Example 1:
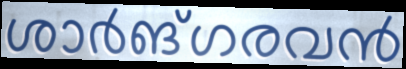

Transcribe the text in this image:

ശാർങ്ഗരവൻ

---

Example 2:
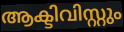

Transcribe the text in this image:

ആക്ടിവിസ്റ്റും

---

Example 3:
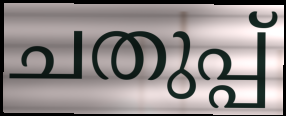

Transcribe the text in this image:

ചതുപ്പ്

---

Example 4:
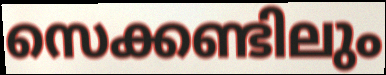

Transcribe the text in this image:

സെക്കണ്ടിലും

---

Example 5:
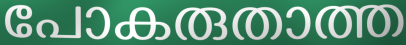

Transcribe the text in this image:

പോകരുതാത്ത